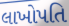
લાખોપતિ